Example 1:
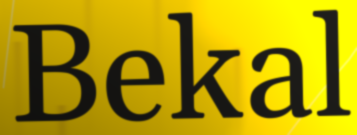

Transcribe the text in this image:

Bekal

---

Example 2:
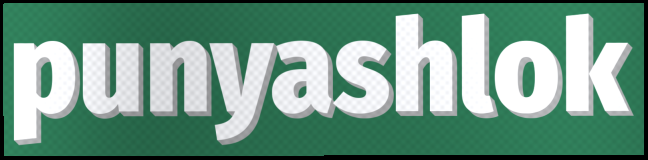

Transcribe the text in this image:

punyashlok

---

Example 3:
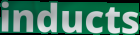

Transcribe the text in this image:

inducts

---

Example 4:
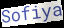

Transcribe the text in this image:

Sofiya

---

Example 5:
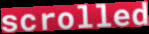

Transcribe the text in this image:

scrolled